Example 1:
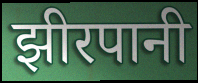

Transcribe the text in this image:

झीरपानी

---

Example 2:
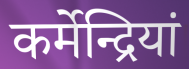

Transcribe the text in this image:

कर्मेन्द्रियां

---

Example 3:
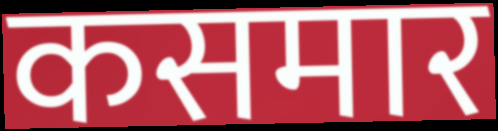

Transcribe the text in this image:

कसमार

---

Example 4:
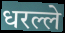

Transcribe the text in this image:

धरल्ले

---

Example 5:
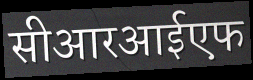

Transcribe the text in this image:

सीआरआईएफ